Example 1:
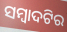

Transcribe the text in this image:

ସମ୍ବାଦଟିର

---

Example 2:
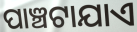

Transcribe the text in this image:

ପାଞ୍ଚଟାଯାଏ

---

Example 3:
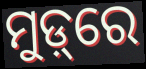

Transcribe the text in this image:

ମୁଡ଼୍‌ରେ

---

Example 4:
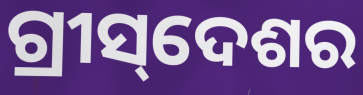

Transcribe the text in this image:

ଗ୍ରୀସ୍‌ଦେଶର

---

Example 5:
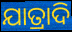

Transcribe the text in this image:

ଯାତ୍ରାଦି